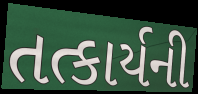
તત્કાર્યની